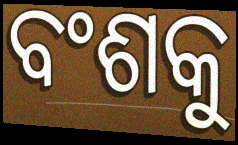
ବଂଶକୁ